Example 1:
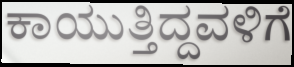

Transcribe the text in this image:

ಕಾಯುತ್ತಿದ್ದವಳಿಗೆ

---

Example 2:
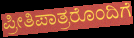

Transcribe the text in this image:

ಪ್ರೀತಿಪಾತ್ರರೊಂದಿಗೆ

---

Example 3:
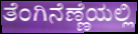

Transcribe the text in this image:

ತೆಂಗಿನೆಣ್ಣೆಯಲ್ಲಿ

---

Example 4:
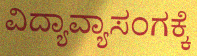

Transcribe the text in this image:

ವಿದ್ಯಾವ್ಯಾಸಂಗಕ್ಕೆ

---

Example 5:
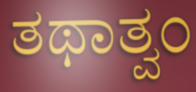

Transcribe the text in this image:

ತಥಾತ್ವಂ